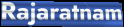
Rajaratnam